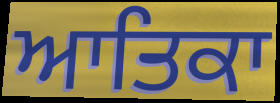
ਆਤਿਕਾ